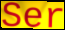
Ser